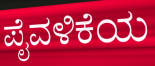
ಪೈವಳಿಕೆಯ